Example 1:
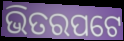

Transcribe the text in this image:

ଭିତରପଟେ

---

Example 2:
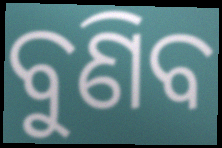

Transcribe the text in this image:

ବୁଣିବ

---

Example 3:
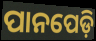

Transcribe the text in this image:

ପାନପେଡ଼ି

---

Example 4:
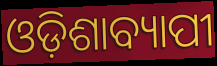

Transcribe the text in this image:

ଓଡ଼ିଶାବ୍ୟାପୀ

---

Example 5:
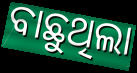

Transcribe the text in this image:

ବାଛୁଥିଲା